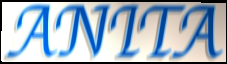
ANITA